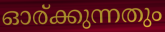
ഓര്ക്കുന്നതും